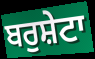
ਬਰੁਸ਼ੇਟਾ